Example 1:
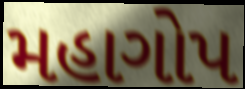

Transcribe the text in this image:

મહાગોપ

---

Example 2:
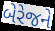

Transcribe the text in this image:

બેરેજને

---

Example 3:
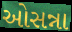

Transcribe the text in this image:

ઓસન્ના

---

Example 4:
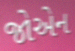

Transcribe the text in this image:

જોએન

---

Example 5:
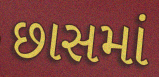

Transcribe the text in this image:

છાસમાં